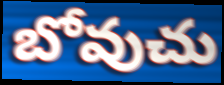
బోవుచు